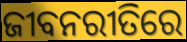
ଜୀବନରୀତିରେ